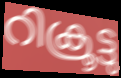
റിക്രൂട്ടു